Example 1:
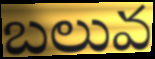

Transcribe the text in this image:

బలువ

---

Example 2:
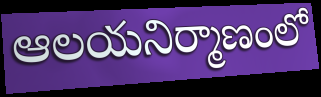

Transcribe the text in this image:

ఆలయనిర్మాణంలో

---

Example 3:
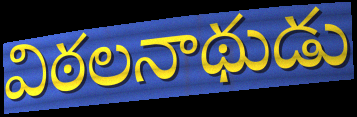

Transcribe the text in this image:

విఠలనాథుడు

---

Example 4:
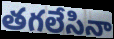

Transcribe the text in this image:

తగలేసినా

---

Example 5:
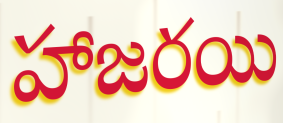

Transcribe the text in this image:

హాజరయి